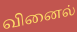
வினைல்